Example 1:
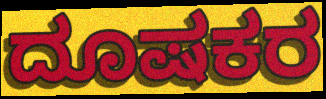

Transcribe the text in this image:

ದೂಷಕರ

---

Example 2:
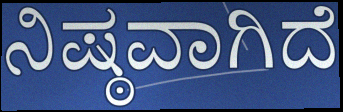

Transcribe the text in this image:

ನಿಷ್ಠವಾಗಿದೆ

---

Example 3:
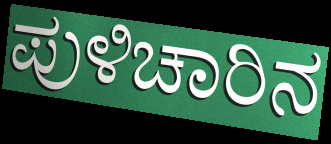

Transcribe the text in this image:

ಪುಳಿಚಾರಿನ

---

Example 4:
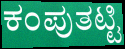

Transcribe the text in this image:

ಕಂಪುತಟ್ಟಿ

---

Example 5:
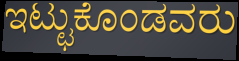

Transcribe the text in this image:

ಇಟ್ಟುಕೊಂಡವರು